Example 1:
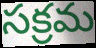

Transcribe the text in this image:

సక్రమ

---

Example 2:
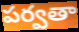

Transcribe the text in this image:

పర్వతా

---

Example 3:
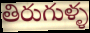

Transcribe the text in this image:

తిరుగుళ్ళ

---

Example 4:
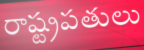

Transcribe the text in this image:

రాష్ట్రపతులు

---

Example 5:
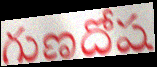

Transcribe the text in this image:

గుణదోష